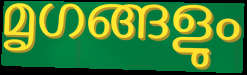
മൃഗങ്ങളും